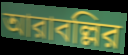
আরাবল্লির